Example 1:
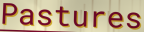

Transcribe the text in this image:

Pastures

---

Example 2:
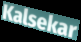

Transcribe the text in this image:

Kalsekar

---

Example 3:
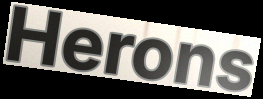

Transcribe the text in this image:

Herons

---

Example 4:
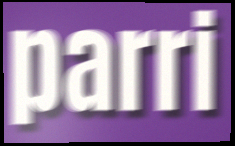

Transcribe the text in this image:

parri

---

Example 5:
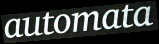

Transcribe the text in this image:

automata